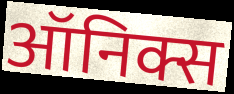
ऑनिक्स